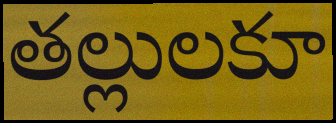
తల్లులకూ